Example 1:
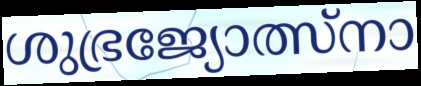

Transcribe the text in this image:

ശുഭ്രജ്യോത്സ്നാ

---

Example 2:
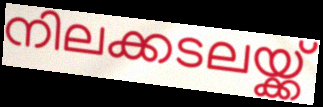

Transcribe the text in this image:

നിലക്കടലയ്ക്ക്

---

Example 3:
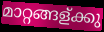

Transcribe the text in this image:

മാറ്റങ്ങള്ക്കു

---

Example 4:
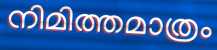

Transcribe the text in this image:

നിമിത്തമാത്രം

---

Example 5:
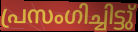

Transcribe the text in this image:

പ്രസംഗിച്ചിട്ടു്